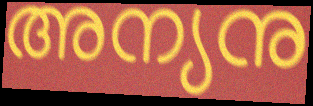
അന്യനു